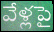
వేళ్లపై